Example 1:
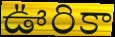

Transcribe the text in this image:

ఊరికా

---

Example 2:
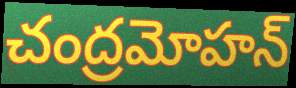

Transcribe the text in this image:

చంద్రమోహన్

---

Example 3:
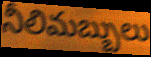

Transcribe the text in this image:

నీలిమబ్బులు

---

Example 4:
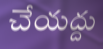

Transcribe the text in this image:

చేయద్దు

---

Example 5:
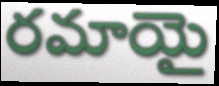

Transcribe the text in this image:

రమాయై